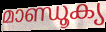
മാണ്ഡൂക്യ